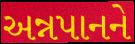
અન્નપાનને